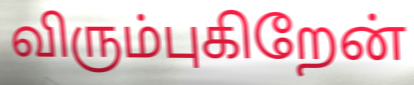
விரும்புகிறேன்